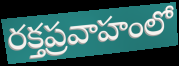
రక్తప్రవాహంలో